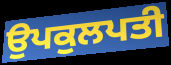
ਉਪਕੁਲਪਤੀ